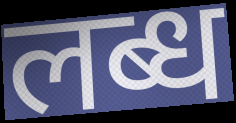
लब्ध